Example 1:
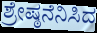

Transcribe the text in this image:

ಶ್ರೇಷ್ಠನೆನಿಸಿದ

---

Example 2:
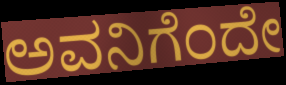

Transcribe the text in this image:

ಅವನಿಗೆಂದೇ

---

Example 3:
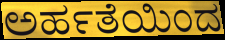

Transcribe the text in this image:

ಅರ್ಹತೆಯಿಂದ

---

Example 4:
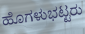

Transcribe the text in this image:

ಹೊಗಳುಭಟ್ಟರು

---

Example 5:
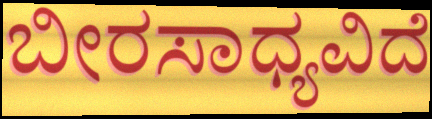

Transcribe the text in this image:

ಬೀರಸಾಧ್ಯವಿದೆ